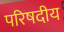
परिषदीय